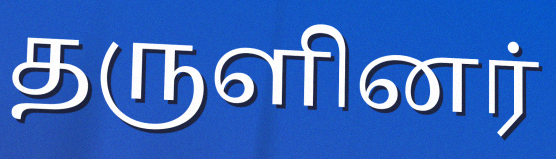
தருளினர்